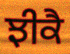
ਝੀਕੈ